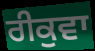
ਰੀਕੁਵਾ